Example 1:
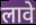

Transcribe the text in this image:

लावे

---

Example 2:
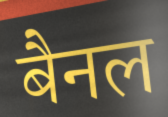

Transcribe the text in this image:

बैनल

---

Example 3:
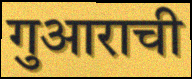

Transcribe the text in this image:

गुआराची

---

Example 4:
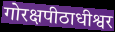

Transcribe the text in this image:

गोरक्षपीठाधीश्वर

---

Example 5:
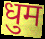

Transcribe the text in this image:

धुम